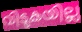
വിടുകയില്ല